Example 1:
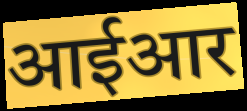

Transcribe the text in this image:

आईआर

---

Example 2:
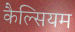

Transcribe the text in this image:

कैल्सियम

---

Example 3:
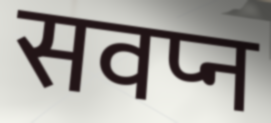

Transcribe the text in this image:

सवप्न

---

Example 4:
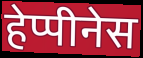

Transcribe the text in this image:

हेप्पीनेस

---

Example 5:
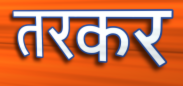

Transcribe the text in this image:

तरकर